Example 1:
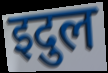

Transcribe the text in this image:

इदुल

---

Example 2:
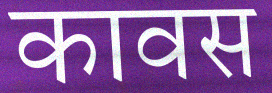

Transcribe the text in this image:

कावस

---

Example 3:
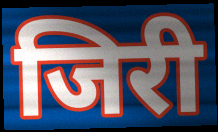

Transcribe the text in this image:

जिरी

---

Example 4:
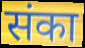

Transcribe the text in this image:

संका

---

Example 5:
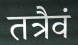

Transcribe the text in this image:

तत्रैवं